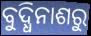
ବୁଦ୍ଧିନାଶରୁ